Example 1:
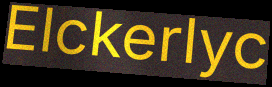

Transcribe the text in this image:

Elckerlyc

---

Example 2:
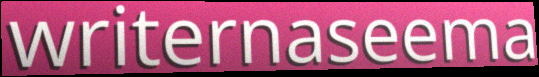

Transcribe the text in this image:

writernaseema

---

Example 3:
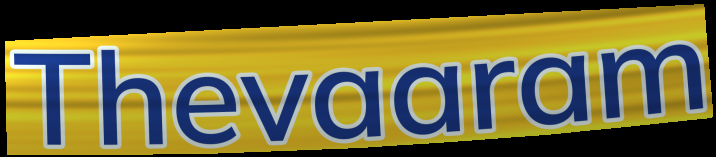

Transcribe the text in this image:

Thevaaram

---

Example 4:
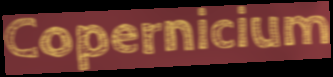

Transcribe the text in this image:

Copernicium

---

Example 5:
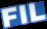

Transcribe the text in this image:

FIL